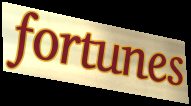
fortunes